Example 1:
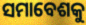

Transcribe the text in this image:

ସମାବେଶକୁ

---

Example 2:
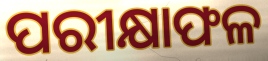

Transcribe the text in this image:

ପରୀକ୍ଷାଫଳ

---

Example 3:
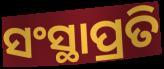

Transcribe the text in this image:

ସଂସ୍ଥାପ୍ରତି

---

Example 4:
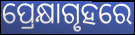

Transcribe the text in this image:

ପ୍ରେକ୍ଷାଗୃହରେ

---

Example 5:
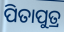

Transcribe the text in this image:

ପିତାପୁତ୍ର